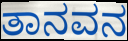
ತಾನವನ